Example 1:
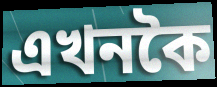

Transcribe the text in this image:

এখনকৈ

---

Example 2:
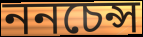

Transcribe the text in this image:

ননচেন্স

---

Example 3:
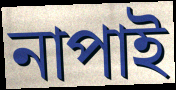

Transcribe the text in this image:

নাপাই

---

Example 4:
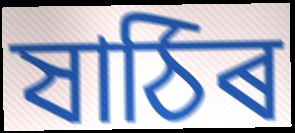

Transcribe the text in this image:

ষাঠিৰ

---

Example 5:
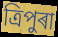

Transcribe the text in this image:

ত্ৰিপুৰা